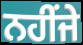
ਨਹੀਂਜੇ